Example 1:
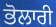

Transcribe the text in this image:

ਭੋਲਾਰੀ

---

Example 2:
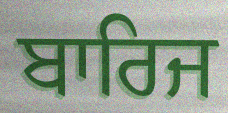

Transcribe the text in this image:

ਬਾਰਿਜ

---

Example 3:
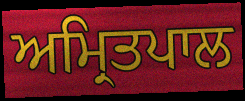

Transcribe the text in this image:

ਅਮ੍ਰਿਤਪਾਲ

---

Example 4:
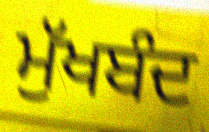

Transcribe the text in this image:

ਮੁੱਖਬੰਦ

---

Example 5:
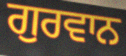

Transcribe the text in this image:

ਗੁਰਵਾਨ